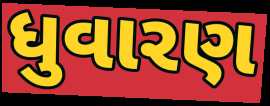
ધુવારણ